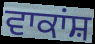
ਵਾਕਾਂਸ਼